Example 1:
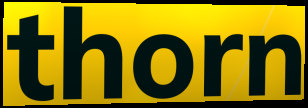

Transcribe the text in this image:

thorn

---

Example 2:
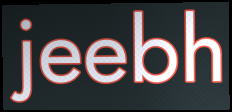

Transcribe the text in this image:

jeebh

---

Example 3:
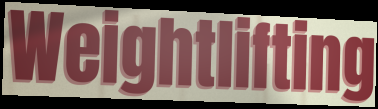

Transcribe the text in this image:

Weightlifting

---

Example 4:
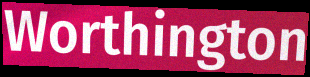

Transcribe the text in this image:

Worthington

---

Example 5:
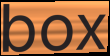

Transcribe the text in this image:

box